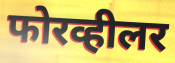
फोरव्हीलर